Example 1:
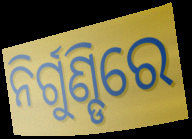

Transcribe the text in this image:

ନିର୍ଗୁଣ୍ଡିରେ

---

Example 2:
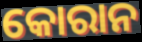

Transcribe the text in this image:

କୋରାନ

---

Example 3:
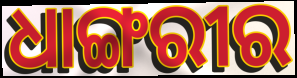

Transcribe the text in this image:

ଧାଙ୍ଗରୀର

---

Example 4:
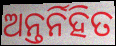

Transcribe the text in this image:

ଅନ୍ତର୍ନିହିତ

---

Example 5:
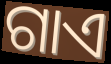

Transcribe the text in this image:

ଗାଏ